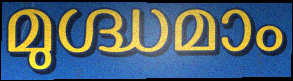
മുഗ്ദ്ധമാം